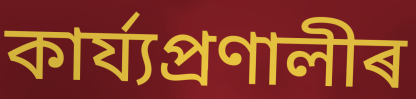
কাৰ্য্যপ্ৰণালীৰ